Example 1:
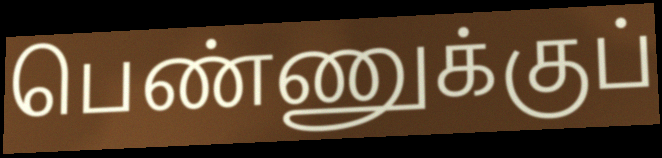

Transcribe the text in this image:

பெண்ணுக்குப்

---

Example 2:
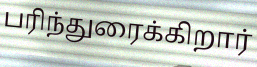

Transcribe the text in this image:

பரிந்துரைக்கிறார்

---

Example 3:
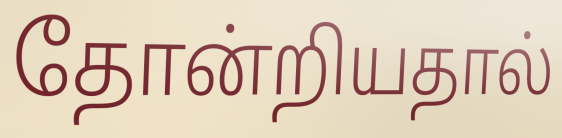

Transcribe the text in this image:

தோன்றியதால்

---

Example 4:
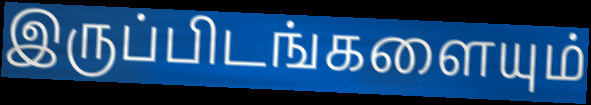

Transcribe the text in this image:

இருப்பிடங்களையும்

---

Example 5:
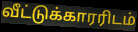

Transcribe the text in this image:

வீட்டுக்காரரிடம்